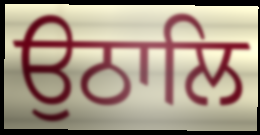
ਉਠਾਲਿ